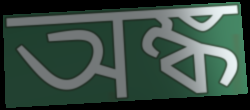
অঙ্ক